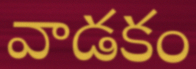
వాడకం